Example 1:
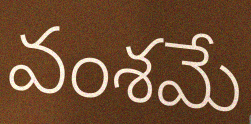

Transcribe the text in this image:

వంశమే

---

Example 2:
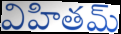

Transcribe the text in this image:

విహితమ్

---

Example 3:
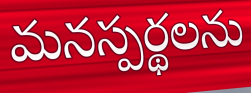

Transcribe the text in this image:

మనస్పర్థలను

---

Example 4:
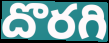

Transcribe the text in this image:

దొరగి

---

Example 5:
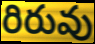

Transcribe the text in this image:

రిరువు